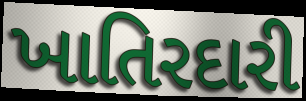
ખાતિરદારી